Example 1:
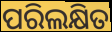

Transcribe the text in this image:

ପରିଲକ୍ଷିତ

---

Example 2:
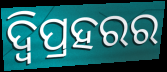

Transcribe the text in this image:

ଦ୍ବିପ୍ରହରର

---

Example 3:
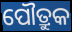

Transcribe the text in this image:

ପୌତ୍ରୁକ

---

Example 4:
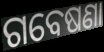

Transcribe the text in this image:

ଗବେଷଣା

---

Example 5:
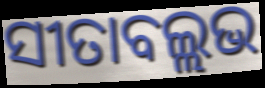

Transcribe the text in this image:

ସୀତାବଲ୍ଲଭ